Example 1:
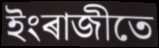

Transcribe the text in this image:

ইংৰাজীতে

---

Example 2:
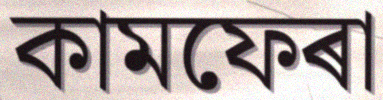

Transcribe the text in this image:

কামফেৰা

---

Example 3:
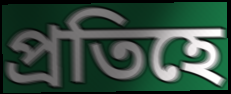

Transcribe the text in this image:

প্ৰতিহে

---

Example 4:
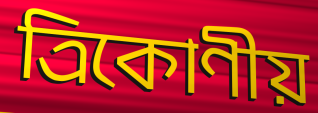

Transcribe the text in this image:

ত্ৰিকোণীয়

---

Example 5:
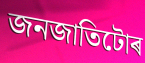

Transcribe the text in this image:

জনজাতিটোৰ